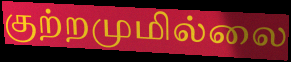
குற்றமுமில்லை